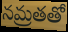
నమ్రతతో